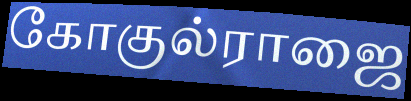
கோகுல்ராஜை